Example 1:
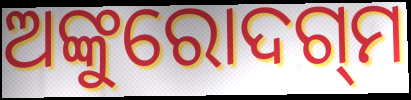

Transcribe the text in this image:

ଅଙ୍କୁରୋଦଗ୍‌ମ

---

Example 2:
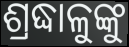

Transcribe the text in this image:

ଶ୍ରଦ୍ଧାଳୁଙ୍କୁ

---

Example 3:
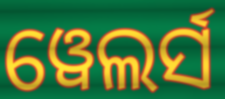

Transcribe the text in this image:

ୱେଲର୍ସ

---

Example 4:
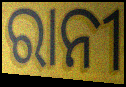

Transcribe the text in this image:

ରାନୀ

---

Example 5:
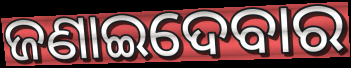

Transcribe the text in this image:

ଜଣାଇଦେବାର